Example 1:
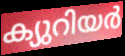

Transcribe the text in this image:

ക്യുറിയർ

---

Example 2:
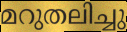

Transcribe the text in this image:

മറുതലിച്ചു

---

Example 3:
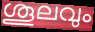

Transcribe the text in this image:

ശൂലവും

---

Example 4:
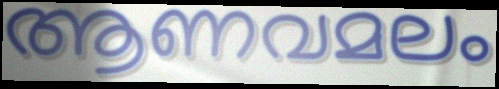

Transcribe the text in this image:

ആണവമലം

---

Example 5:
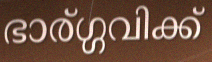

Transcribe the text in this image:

ഭാര്ഗ്ഗവിക്ക്